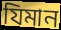
যিমান